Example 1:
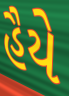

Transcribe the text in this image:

હૈયે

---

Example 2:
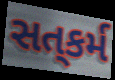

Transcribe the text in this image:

સત્‌કર્મ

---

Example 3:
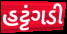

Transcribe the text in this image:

હટ્ટંગડી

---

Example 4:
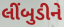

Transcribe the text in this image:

લીંબુડીને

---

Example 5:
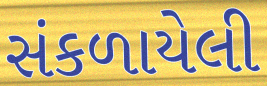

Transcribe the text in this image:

સંકળાયેલી